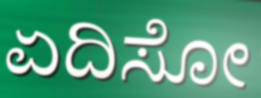
ಏದಿಸೋ